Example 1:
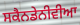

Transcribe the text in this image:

ਸਕੈਨਡੇਨੀਵੀਆ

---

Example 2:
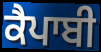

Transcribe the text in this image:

ਕੈਪਾਬੀ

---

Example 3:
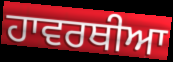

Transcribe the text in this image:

ਹਾਵਰਥੀਆ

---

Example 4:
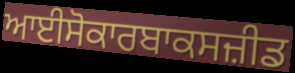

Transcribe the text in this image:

ਆਈਸੋਕਾਰਬਾਕਸਜ਼ੀਡ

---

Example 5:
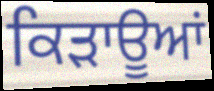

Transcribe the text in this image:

ਕਿੜਾਊਆਂ